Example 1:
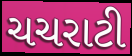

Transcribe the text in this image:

ચચરાટી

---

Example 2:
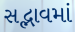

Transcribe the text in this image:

સદ્ભાવમાં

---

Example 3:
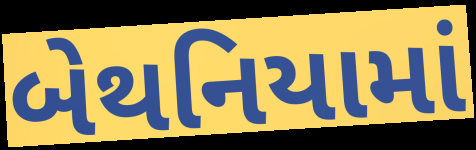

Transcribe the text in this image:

બેથનિયામાં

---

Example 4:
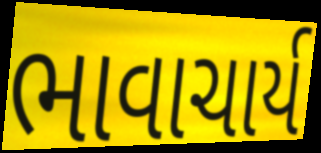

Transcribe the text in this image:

ભાવાચાર્ય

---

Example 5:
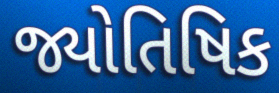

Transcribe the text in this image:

જ્યોતિષિક